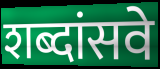
शब्दांसवे